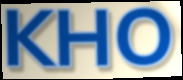
KHO